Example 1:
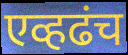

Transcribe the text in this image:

एव्हढंच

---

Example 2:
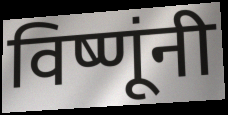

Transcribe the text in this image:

विष्णूंनी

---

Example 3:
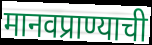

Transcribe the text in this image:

मानवप्राण्याची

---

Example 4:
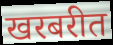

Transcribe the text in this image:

खरबरीत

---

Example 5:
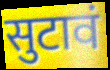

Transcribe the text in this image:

सुटावं